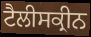
ਟੈਲੀਸਕ੍ਰੀਨ